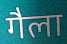
गैला